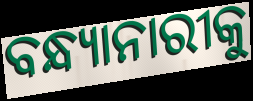
ବନ୍ଧ୍ୟାନାରୀକୁ